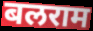
बलराम